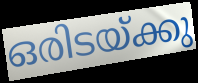
ഒരിടയ്ക്കു